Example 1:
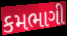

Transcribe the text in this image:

કમભાગી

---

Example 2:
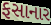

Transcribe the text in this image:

ફસાનાર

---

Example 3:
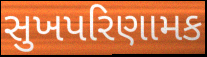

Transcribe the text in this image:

સુખપરિણામક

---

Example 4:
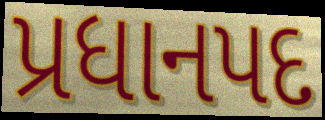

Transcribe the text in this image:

પ્રધાનપદ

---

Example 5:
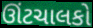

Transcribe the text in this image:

ઊંટચાલકો